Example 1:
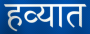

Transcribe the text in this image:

हव्‍यात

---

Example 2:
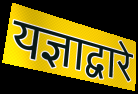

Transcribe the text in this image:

यज्ञाद्वारे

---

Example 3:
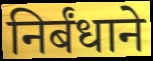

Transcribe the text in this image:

निर्बंधाने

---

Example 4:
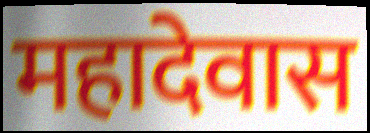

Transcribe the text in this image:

महादेवास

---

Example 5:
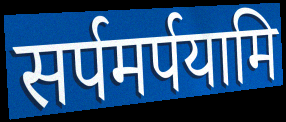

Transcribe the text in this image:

सर्पमर्पयामि